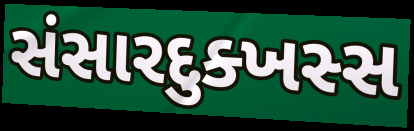
સંસારદુક્ખસ્સ